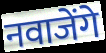
नवाजेंगे